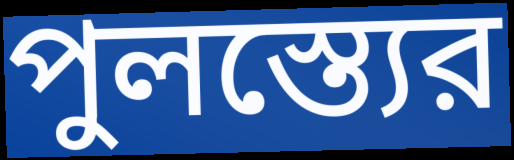
পুলস্ত্যের